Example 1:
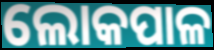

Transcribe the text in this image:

ଲୋକପାଳ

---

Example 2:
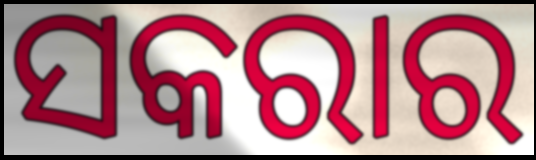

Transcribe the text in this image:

ସକରାର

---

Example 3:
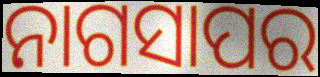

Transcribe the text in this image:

ନାଗସାପର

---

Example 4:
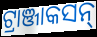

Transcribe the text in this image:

ଟ୍ରାଞ୍ଜାକସନ୍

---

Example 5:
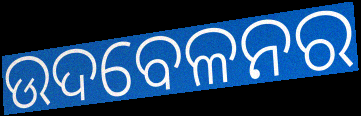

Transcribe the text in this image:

ଉଦବେଳନର